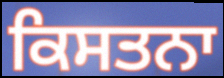
ਕਿਸਤਨਾ